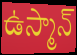
ఉస్మాన్